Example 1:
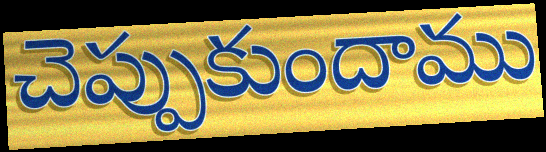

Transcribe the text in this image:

చెప్పుకుందాము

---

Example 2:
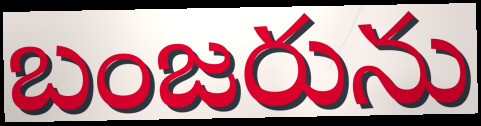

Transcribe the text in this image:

బంజరును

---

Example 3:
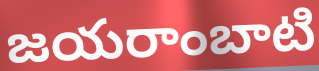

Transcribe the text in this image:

జయరాంబాటి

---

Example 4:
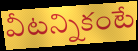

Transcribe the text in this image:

వీటన్నికంటే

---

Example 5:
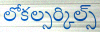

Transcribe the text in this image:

లోకల్సర్కిల్స్